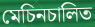
মেচিনচালিত